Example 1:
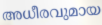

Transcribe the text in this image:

അധീരവുമായ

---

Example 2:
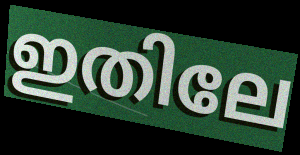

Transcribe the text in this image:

ഇതിലേ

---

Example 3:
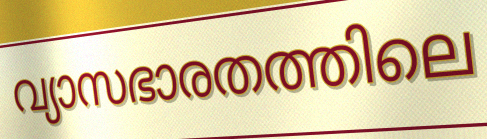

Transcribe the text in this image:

വ്യാസഭാരതത്തിലെ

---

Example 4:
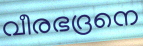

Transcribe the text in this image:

വീരഭദ്രനെ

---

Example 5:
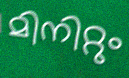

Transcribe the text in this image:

മിനിറ്റും